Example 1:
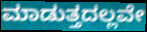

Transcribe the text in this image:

ಮಾಡುತ್ತದಲ್ಲವೇ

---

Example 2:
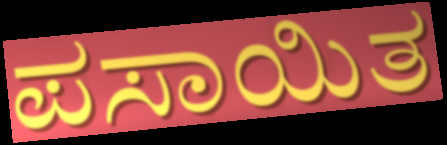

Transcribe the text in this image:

ಪಸಾಯಿತ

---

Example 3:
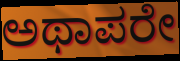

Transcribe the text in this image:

ಅಥಾಪರೇ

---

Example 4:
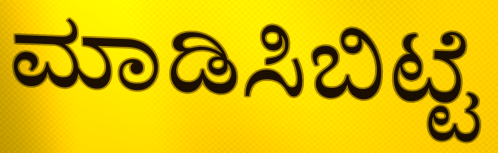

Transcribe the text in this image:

ಮಾಡಿಸಿಬಿಟ್ಟೆ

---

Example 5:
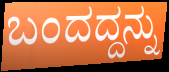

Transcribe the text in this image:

ಬಂದದ್ದನ್ನು